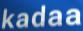
kadaa